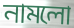
নামলো